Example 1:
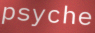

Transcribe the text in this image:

psyche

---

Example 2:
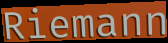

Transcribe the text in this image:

Riemann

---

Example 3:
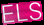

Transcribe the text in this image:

ELS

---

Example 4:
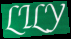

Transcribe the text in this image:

LILY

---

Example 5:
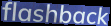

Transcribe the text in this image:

flashback